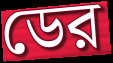
ডের